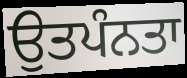
ਉਤਪੰਨਤਾ